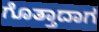
ಗೊತ್ತಾದಾಗ